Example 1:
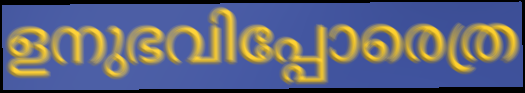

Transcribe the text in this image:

ളനുഭവിപ്പോരെത്ര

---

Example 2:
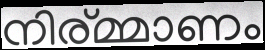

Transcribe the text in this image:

നിര്മ്മാണം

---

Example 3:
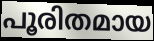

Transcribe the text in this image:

പൂരിതമായ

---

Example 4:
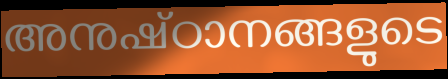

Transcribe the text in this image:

അനുഷ്‌ഠാനങ്ങളുടെ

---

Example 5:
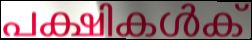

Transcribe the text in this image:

പക്ഷികൾക്